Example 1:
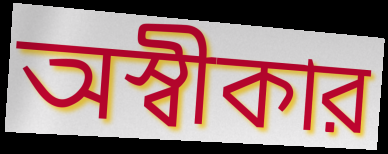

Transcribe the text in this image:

অস্বীকার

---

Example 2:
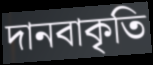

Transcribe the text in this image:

দানবাকৃতি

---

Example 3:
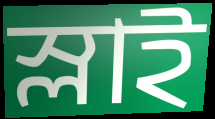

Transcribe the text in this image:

স্লাই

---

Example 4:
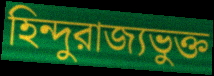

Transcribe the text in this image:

হিন্দুরাজ্যভুক্ত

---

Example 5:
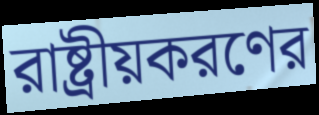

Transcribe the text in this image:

রাষ্ট্রীয়করণের